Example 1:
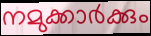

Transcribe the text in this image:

നമുക്കാർക്കും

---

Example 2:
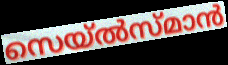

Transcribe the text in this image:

സെയ്ൽസ്മാൻ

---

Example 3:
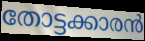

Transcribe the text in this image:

തോട്ടക്കാരൻ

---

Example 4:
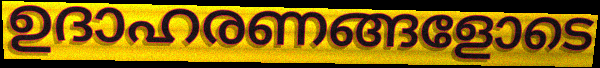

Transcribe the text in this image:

ഉദാഹരണങ്ങളോടെ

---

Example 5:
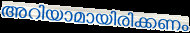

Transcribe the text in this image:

അറിയാമായിരിക്കണം